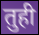
तुही